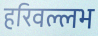
हरिवल्लभ